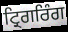
ਟ੍ਰਿਗਰਿੰਗ